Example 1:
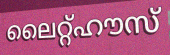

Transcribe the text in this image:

ലൈറ്റ്ഹൗസ്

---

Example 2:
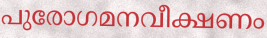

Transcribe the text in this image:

പുരോഗമനവീക്ഷണം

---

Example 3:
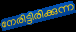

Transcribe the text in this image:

നേരിട്ടിരിക്കുന്ന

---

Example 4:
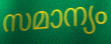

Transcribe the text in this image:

സമാന്യം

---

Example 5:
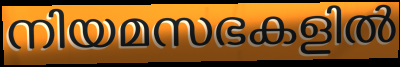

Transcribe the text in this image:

നിയമസഭകളിൽ